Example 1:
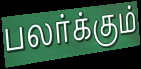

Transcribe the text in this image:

பலர்க்கும்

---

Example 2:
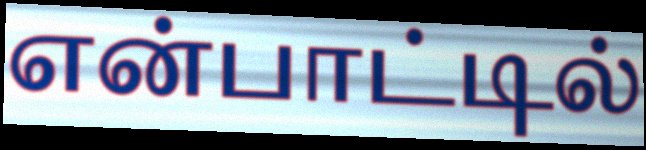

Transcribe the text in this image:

என்பாட்டில்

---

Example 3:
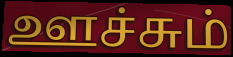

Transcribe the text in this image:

ஊச்சும்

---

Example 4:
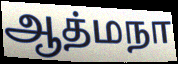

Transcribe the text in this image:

ஆத்மநா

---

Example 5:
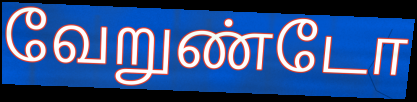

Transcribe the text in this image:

வேறுண்டோ